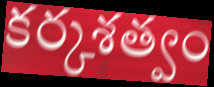
కర్కశత్వం